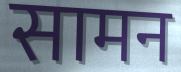
सामन